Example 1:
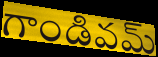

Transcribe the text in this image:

గాండివమ్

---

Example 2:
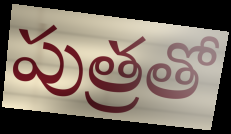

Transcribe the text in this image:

పుత్రతో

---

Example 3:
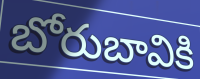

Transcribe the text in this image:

బోరుబావికి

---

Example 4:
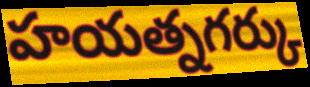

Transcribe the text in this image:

హయత్నగర్కు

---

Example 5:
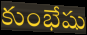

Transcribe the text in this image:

కుంభేషు